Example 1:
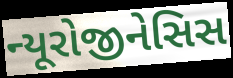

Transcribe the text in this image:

ન્યૂરોજીનેસિસ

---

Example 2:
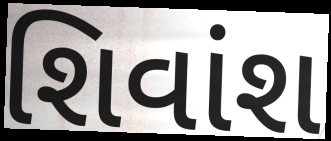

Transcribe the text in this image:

શિવાંશ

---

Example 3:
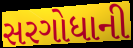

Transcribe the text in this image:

સરગોધાની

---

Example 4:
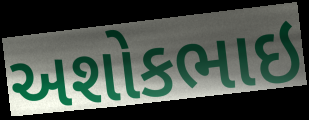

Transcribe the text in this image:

અશોકભાઇ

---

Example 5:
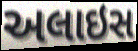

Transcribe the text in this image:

અલાઇસ